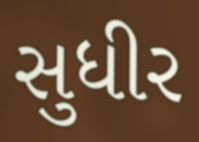
સુધીર